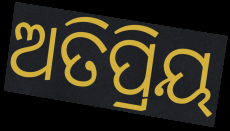
ଅତିପ୍ରିୟ